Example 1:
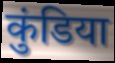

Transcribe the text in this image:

कुंडिया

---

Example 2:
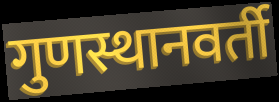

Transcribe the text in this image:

गुणस्थानवर्ती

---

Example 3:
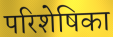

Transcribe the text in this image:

परिशेषिका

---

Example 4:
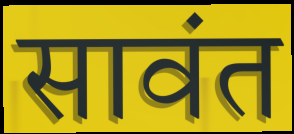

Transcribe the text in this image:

सावंत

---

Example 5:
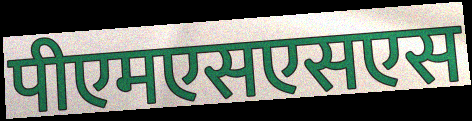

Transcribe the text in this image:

पीएमएसएसएस